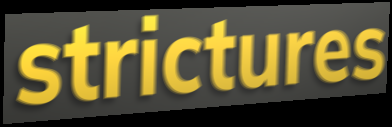
strictures